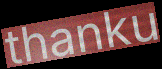
thanku